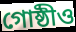
গোষ্ঠীও